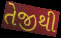
તેજીથી